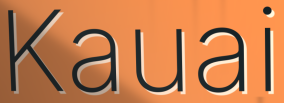
Kauai